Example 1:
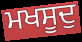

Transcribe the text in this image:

ਮਖਸੂਦੁ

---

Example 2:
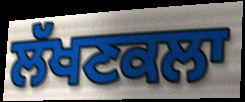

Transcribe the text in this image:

ਲੱਖਣਕਲਾ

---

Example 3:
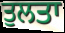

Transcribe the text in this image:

ਤੁਲਤਾ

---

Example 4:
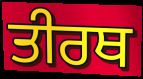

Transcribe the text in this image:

ਤੀਰਥ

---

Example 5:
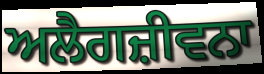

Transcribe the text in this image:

ਅਲੈਗਜ਼ੀਵਨਾ